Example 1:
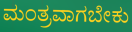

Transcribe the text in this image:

ಮಂತ್ರವಾಗಬೇಕು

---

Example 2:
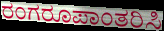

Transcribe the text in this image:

ರಂಗರೂಪಾಂತರಿಸಿ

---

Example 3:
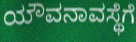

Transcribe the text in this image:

ಯೌವನಾವಸ್ಥೆಗೆ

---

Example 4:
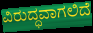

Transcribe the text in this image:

ವಿರುದ್ಧವಾಗಲಿದೆ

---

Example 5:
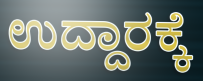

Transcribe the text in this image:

ಉದ್ದಾರಕ್ಕೆ